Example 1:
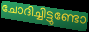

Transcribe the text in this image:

ചോദിച്ചിട്ടുണ്ടോ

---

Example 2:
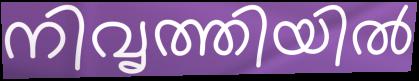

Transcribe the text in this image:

നിവൃത്തിയിൽ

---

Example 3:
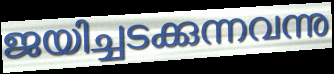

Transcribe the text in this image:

ജയിച്ചടക്കുന്നവന്നു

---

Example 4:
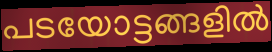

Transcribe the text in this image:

പടയോട്ടങ്ങളിൽ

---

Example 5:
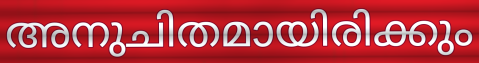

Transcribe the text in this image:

അനുചിതമായിരിക്കും